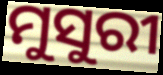
ମୁସୁରୀ